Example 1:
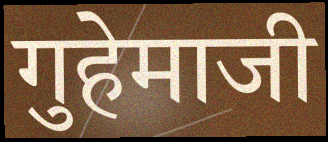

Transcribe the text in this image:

गुहेमाजी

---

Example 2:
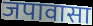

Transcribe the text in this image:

जपावासा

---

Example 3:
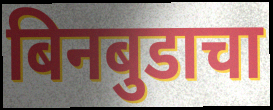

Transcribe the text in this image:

बिनबुडाचा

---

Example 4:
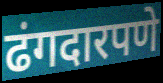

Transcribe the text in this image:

ढंगदारपणे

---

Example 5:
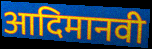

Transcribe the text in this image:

आदिमानवी